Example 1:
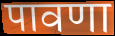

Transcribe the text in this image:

पावणा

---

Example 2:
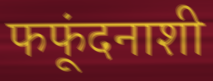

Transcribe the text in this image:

फफूंदनाशी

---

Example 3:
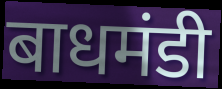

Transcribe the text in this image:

बाधमंडी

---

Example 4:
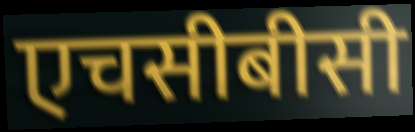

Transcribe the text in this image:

एचसीबीसी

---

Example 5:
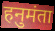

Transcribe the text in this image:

हनुमंता